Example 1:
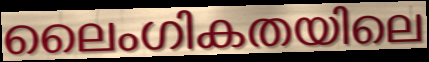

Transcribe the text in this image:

ലൈംഗികതയിലെ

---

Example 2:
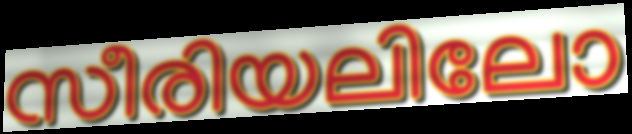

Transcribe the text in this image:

സീരിയലിലോ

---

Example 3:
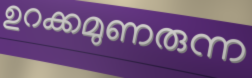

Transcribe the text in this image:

ഉറക്കമുണരുന്ന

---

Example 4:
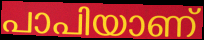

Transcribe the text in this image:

പാപിയാണ്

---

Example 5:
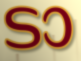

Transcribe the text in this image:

ടാ